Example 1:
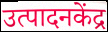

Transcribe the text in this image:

उत्पादनकेंद्र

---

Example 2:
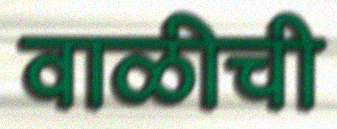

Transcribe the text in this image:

वाळीची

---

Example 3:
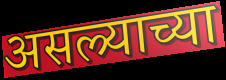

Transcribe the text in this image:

असल्याच्या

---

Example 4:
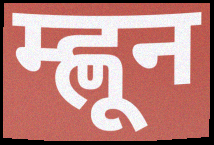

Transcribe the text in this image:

म्ह्णून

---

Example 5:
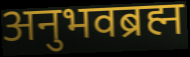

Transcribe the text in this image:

अनुभवब्रह्म